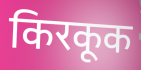
किरकूक